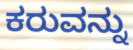
ಕರುವನ್ನು